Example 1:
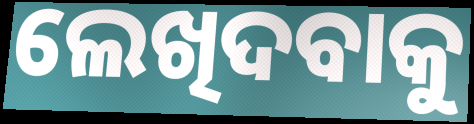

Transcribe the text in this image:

ଲେଖିଦବାକୁ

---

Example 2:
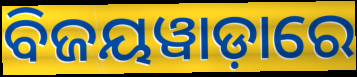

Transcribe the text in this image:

ବିଜୟୱାଡ଼ାରେ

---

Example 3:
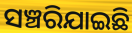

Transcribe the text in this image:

ସଞ୍ଚରିଯାଇଛି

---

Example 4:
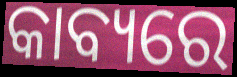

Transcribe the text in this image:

କାବ୍ଯରେ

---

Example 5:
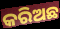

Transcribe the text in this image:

କରିଅଛ